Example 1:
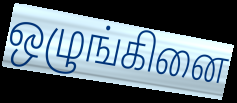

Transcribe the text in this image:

ஒழுங்கினை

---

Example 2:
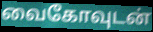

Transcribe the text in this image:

வைகோவுடன்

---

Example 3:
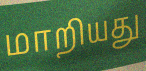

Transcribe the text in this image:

மாறியது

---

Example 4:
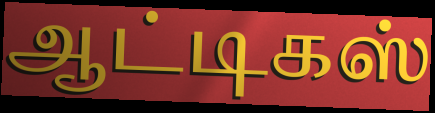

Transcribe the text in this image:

ஆட்டிகஸ்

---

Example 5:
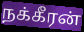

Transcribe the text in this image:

நக்கீரன்